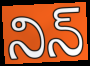
నిన్